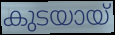
കുടയായ്